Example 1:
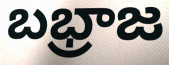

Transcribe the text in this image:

బభ్రాజ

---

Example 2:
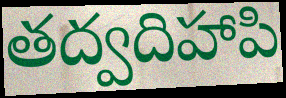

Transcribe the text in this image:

తద్వదిహాపి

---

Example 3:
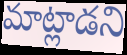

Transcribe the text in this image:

మాట్లాడని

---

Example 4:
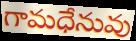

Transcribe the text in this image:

గామధేనువు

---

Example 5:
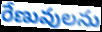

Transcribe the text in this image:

రేణువులను